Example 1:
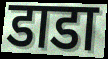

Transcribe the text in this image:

डाडा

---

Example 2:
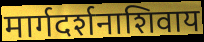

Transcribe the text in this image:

मार्गदर्शनाशिवाय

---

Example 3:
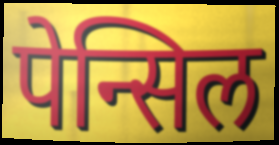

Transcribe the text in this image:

पेन्सिल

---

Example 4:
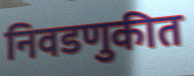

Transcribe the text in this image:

निवडणुकीत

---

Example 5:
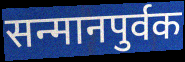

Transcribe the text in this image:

सन्मानपुर्वक